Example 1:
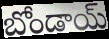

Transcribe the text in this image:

బోండాయ్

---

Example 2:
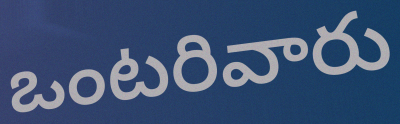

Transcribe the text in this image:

ఒంటరివారు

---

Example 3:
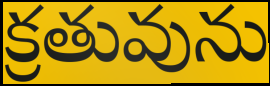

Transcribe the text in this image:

క్రతువును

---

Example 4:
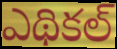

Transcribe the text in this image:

ఎథికల్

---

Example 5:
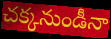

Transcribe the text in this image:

చక్కనుండీనా